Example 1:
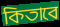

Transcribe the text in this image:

কিতাবে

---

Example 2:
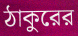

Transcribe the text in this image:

ঠাকুরের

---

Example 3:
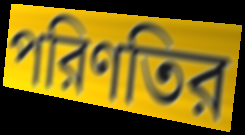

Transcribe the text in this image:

পরিণতির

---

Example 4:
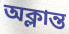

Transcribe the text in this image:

অক্লান্ত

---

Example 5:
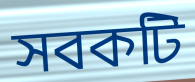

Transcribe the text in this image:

সবকটি